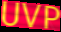
UVP